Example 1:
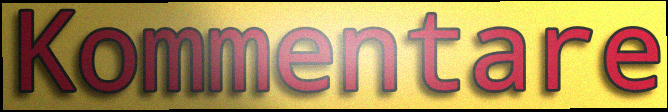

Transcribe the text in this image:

Kommentare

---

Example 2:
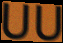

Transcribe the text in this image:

UU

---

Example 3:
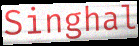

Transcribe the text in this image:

Singhal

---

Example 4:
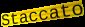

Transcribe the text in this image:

Staccato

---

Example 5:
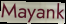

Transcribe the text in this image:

Mayank